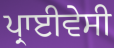
ਪ੍ਰਾਈਵੇਸੀ